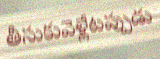
తీసుకువెళ్లేటప్పుడు